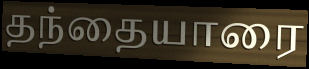
தந்தையாரை